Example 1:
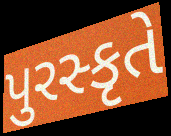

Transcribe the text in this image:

પુરસ્કૃતે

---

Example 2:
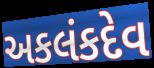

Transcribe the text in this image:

અકલંકદેવ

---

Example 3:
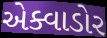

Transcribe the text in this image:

એક્વાડોર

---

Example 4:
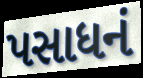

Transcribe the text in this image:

પસાધનં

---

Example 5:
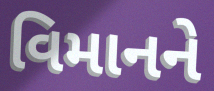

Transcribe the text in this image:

વિમાનને